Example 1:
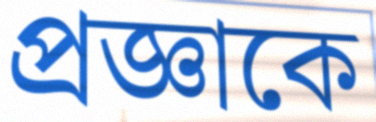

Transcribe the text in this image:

প্রজ্ঞাকে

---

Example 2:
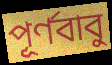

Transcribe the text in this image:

পূর্ণবাবু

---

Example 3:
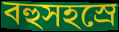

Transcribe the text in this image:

বহুসহস্রে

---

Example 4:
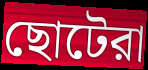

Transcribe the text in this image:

ছোটেরা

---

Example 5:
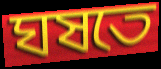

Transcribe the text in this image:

ঘষতে